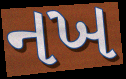
નખ